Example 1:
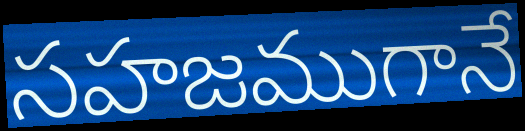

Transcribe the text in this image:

సహజముగానే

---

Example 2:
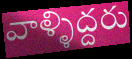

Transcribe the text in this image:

వాళ్ళిద్దరు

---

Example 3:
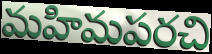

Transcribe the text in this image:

మహిమపరచి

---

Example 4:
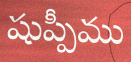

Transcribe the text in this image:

షుప్పీము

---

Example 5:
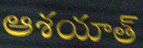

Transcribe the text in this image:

ఆశయాత్